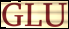
GLU